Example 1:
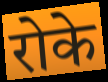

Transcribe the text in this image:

रोके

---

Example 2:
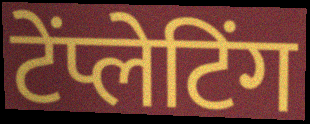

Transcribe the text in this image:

टेंप्लेटिंग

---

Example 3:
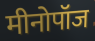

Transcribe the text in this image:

मीनोपॉज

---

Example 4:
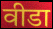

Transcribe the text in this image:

वीडा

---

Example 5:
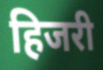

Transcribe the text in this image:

हिजरी